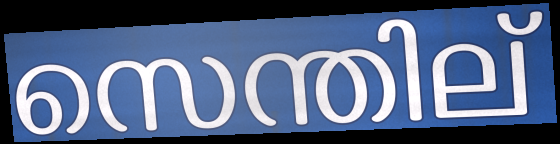
സെന്തില്